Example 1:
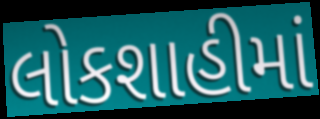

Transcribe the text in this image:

લોકશાહીમાં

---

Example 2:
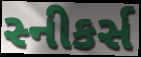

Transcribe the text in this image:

સ્નીકર્સ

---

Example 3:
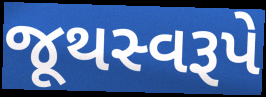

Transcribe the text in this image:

જૂથસ્વરૂપે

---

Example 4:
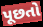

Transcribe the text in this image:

પૂછતો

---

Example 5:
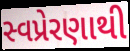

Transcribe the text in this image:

સ્વપ્રેરણાથી